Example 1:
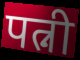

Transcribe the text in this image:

पत्नी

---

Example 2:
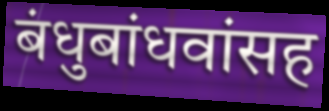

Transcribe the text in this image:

बंधुबांधवांसह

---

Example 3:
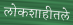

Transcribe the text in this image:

लोकशाहीतले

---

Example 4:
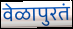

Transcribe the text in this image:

वेळापुरतं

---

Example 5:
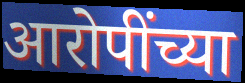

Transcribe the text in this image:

आरोपींच्या